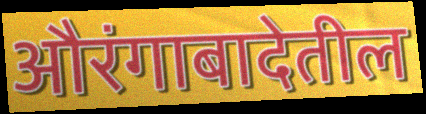
औरंगाबादेतील